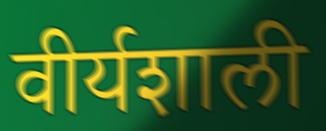
वीर्यशाली